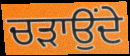
ਚੜਾਉਂਦੇ